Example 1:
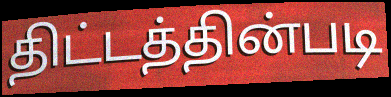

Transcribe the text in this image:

திட்டத்தின்படி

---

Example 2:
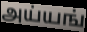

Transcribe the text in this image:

அய்யங்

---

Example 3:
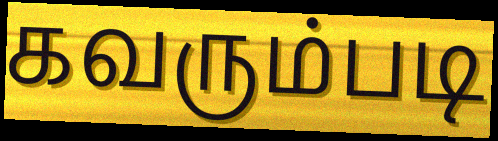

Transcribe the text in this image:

கவரும்படி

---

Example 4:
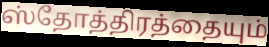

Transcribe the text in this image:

ஸ்தோத்திரத்தையும்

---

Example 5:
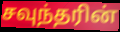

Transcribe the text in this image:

சவுந்தரின்